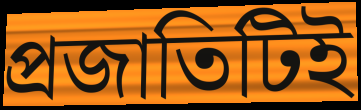
প্রজাতিটিই